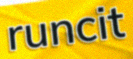
runcit